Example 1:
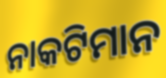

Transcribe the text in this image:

ନାକଟିମାନ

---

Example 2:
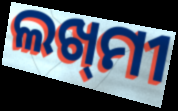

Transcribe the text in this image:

ଲଖ୍‌ମୀ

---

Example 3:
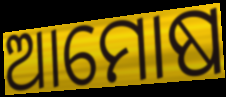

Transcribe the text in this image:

ଆମୋଷ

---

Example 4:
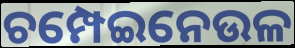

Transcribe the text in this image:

ଚମ୍ପେଇନେଉଳ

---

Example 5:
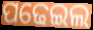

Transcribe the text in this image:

ପଢେଇଲ